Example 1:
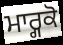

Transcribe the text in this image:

ਮਾਰ੍ਗਕੋ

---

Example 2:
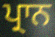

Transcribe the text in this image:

ਪ੍ਰਾਨ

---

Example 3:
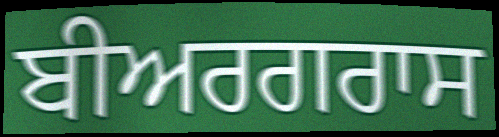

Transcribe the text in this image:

ਬੀਅਰਗਰਾਸ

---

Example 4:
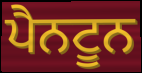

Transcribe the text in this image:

ਪੈਨਟੂਨ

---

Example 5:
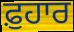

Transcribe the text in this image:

ਫ਼ੁਹਾਰ